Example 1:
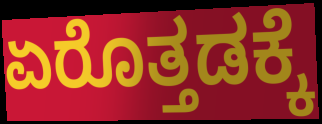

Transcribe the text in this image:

ಏರೊತ್ತಡಕ್ಕೆ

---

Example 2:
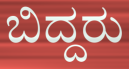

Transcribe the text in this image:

ಬಿದ್ದರು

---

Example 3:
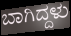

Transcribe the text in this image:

ಬಾಗಿದ್ದಳು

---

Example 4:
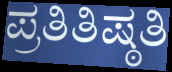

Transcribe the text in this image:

ಪ್ರತಿತಿಷ್ಠತಿ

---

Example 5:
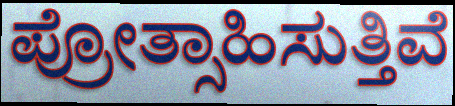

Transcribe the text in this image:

ಪ್ರೋತ್ಸಾಹಿಸುತ್ತಿವೆ